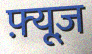
फ़्यूज़